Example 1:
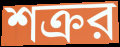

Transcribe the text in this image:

শক্রর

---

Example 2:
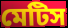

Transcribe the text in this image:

মেটিস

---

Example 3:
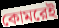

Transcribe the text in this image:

কোমরেই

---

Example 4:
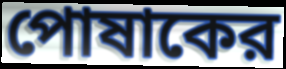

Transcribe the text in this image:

পোষাকের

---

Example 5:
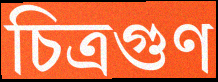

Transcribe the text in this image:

চিত্রগুণ